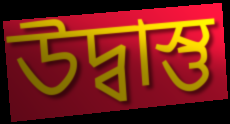
উদ্বাস্তু